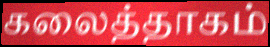
கலைத்தாகம்